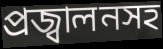
প্রজ্বালনসহ